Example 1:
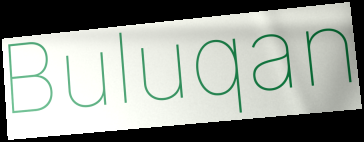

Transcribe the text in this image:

Buluqan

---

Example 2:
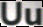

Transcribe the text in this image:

Uu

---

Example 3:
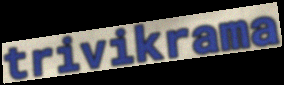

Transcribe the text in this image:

trivikrama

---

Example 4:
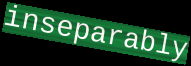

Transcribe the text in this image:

inseparably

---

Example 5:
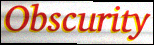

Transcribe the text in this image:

Obscurity